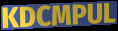
KDCMPUL